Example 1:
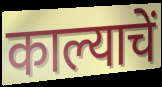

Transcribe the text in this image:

काल्याचें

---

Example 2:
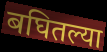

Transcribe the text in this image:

बघितल्या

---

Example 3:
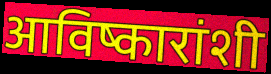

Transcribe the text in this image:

आविष्कारांशी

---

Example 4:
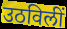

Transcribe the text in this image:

उठविलीं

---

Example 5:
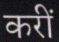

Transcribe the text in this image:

करीं